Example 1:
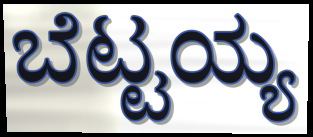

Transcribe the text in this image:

ಬೆಟ್ಟಯ್ಯ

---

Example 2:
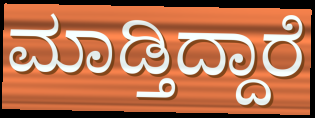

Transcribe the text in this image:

ಮಾಡ್ತಿದ್ದಾರೆ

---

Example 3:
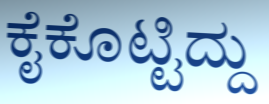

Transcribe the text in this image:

ಕೈಕೊಟ್ಟಿದ್ದು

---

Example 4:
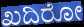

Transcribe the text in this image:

ಖದಿರೋ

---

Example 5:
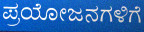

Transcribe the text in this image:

ಪ್ರಯೋಜನಗಳಿಗೆ